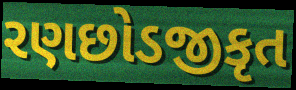
રણછોડજીકૃત